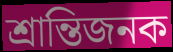
শ্রান্তিজনক